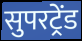
सुपरट्रेंड